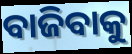
ବାଜିବାକୁ